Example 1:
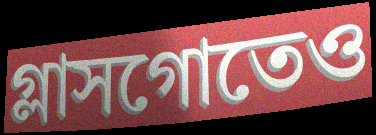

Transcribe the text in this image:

গ্লাসগোতেও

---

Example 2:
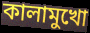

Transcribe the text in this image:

কালামুখো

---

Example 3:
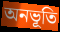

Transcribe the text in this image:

অনভূতি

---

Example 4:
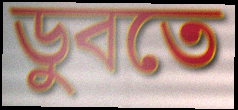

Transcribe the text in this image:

ডুবতে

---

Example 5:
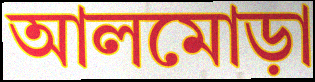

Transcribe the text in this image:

আলমোড়া